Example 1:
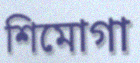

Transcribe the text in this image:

শিমোগা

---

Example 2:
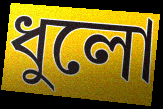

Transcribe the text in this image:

ধুলো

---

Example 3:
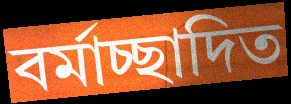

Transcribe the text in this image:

বর্মাচ্ছাদিত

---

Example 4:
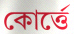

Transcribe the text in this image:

কোর্ত্তে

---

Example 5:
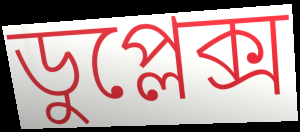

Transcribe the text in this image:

ডুপ্লেক্স